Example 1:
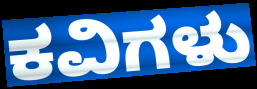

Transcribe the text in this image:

ಕವಿಗಳು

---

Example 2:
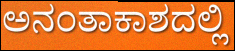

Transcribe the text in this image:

ಅನಂತಾಕಾಶದಲ್ಲಿ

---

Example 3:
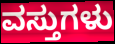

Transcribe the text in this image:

ವಸ್ತುಗಳು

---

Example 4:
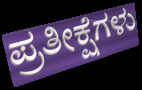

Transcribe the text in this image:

ಪ್ರತೀಕ್ಷೆಗಳು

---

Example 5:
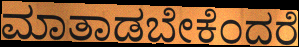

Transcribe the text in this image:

ಮಾತಾಡಬೇಕೆಂದರೆ